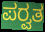
ಪರ್‍ವತ